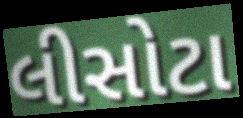
લીસોટા